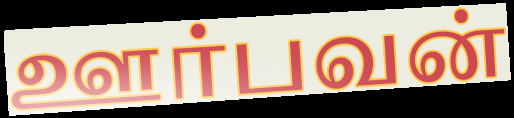
ஊர்பவன்